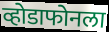
व्होडाफोनला